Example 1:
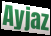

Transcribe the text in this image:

Ayjaz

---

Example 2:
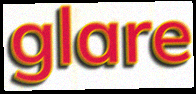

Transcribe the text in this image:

glare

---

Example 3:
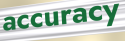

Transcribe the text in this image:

accuracy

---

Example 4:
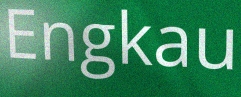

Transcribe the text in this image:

Engkau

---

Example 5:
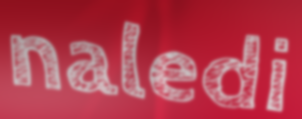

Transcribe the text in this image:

naledi